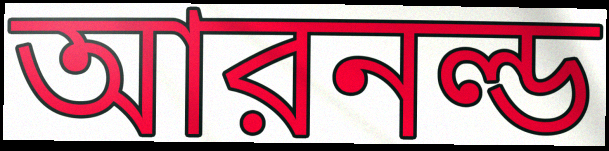
আরনল্ড